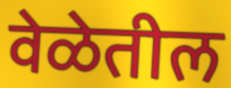
वेळेतील